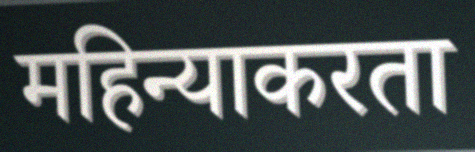
महिन्याकरता